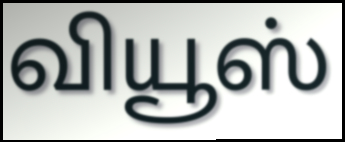
வியூஸ்